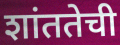
शांततेची